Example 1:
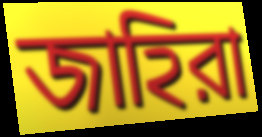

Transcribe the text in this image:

জাহিরা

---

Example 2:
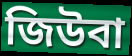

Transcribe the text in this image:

জিউবা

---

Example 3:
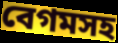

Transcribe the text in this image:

বেগমসহ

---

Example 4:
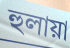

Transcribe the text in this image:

হুলায়া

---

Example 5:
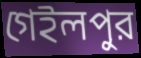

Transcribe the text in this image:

গেইলপুর